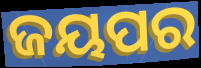
ଜୟପର